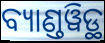
ବ୍ୟାଣ୍ଡୱିଡ୍ଥ